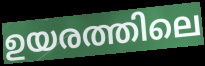
ഉയരത്തിലെ